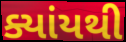
ક્યાંયથી